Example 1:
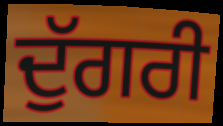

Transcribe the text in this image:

ਦੁੱਗਰੀ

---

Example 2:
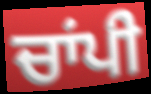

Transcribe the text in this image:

ਚਾਂਪੀ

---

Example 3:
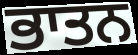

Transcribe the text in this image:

ਭਾਤਨ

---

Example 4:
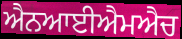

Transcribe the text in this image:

ਐਨਆਈਐਮਐਚ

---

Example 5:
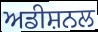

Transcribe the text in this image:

ਅਡੀਸ਼ਨਲ